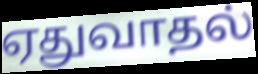
ஏதுவாதல்